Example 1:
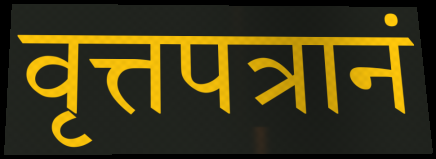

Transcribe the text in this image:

वृत्तपत्रानं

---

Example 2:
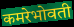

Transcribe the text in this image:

कमरेभोवती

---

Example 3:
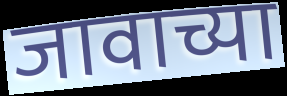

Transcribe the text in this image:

जावाच्या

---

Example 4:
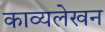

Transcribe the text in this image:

काव्यलेखन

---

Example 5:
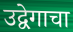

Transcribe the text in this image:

उद्वेगाचा